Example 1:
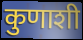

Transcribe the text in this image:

कुणाशी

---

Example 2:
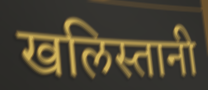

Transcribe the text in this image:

खलिस्तानी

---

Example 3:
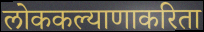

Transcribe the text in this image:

लोककल्याणाकरिता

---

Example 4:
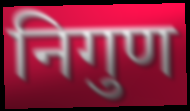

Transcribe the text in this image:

निगुण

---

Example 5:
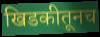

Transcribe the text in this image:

खिडकीतूनच